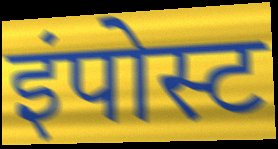
इंपोस्ट